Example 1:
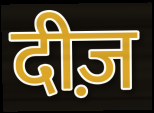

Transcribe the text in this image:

दीज़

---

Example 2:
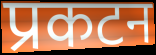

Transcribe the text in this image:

प्रकटन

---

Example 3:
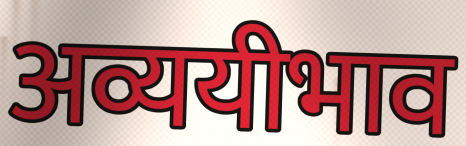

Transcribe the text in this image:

अव्ययीभाव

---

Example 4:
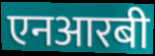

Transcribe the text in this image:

एनआरबी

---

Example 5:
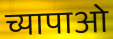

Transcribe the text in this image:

च्यापाओ